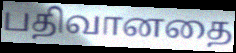
பதிவானதை